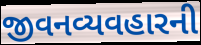
જીવનવ્યવહારની